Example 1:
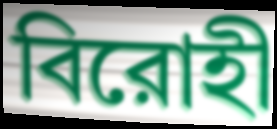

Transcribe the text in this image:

বিরোহী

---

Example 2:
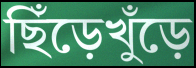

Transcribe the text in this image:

ছিঁড়েখুঁড়ে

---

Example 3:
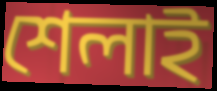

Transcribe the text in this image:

শেলাই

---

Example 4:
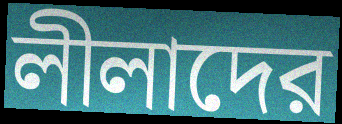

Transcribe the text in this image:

লীলাদের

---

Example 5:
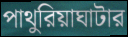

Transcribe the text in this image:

পাথুরিয়াঘাটার